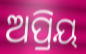
ଅପ୍ରିୟ